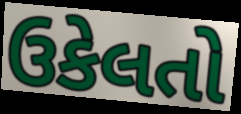
ઉકેલતો